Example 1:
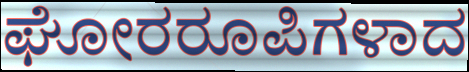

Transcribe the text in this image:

ಘೋರರೂಪಿಗಳಾದ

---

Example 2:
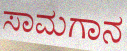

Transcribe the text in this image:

ಸಾಮಗಾನ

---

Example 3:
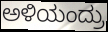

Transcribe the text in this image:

ಅಳಿಯಂದ್ರು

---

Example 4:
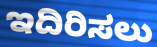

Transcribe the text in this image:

ಇದಿರಿಸಲು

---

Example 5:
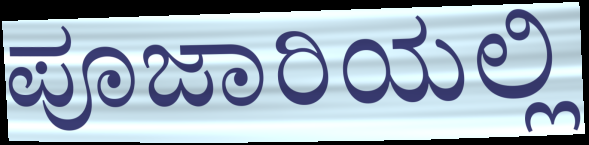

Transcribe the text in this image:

ಪೂಜಾರಿಯಲ್ಲಿ